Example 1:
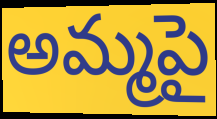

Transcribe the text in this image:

అమ్మపై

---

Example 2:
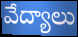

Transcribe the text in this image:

వేద్యాలు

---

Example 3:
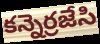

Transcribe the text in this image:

కన్నెర్రజేసి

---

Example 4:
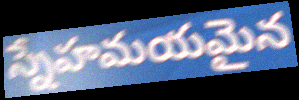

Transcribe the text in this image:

స్నేహమయమైన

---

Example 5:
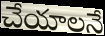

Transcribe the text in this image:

చేయాలనే